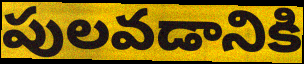
పులవడానికి